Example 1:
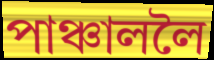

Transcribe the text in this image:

পাঞ্চাললৈ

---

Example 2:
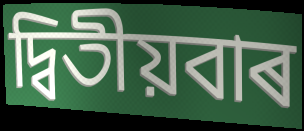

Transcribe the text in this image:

দ্বিতীয়বাৰ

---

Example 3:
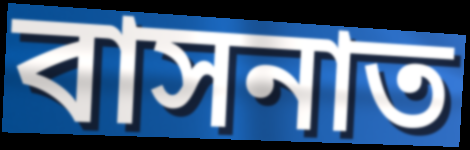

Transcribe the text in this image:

বাসনাত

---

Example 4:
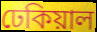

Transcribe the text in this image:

ঢেকিয়াল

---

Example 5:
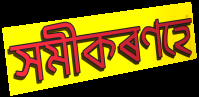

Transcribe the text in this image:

সমীকৰণহে